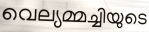
വെല്യമ്മച്ചിയുടെ